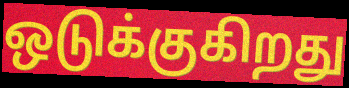
ஒடுக்குகிறது